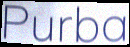
Purba